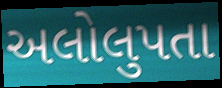
અલોલુપતા